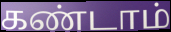
கண்டாம்